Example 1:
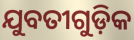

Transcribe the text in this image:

ଯୁବତୀଗୁଡ଼ିକ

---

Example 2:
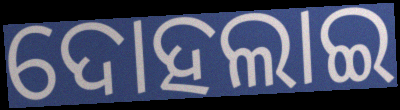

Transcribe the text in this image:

ଦୋହଲାଇ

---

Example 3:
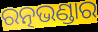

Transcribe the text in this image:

ରତ୍ନଭଣ୍ଡାର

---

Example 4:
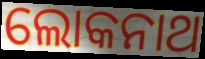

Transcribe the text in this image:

ଲୋକନାଥ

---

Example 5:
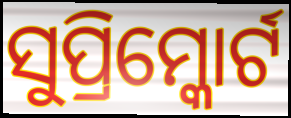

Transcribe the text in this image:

ସୁପ୍ରିମ୍କୋର୍ଟ